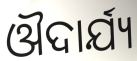
ଔଦାର୍ଯ୍ୟ